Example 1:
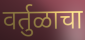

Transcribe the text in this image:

वर्तुळाचा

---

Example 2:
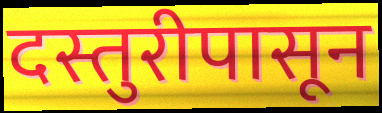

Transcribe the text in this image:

दस्तुरीपासून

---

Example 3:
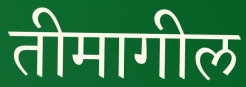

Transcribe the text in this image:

तीमागील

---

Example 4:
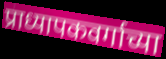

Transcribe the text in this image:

प्राध्यापकवर्गाच्या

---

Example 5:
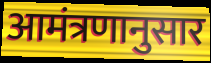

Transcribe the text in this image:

आमंत्रणानुसार